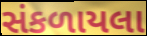
સંકળાયલા